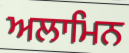
ਅਲਾਮਿਨ